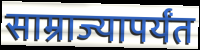
साम्राज्यापर्यंत